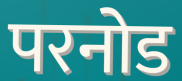
परनोड